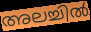
അലച്ചിൽ